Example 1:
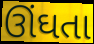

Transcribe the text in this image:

ઊંઘતા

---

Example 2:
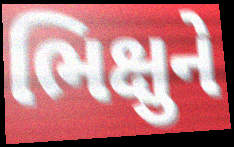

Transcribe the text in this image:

ભિક્ષુને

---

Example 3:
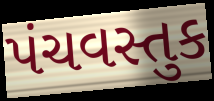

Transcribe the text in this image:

પંચવસ્તુક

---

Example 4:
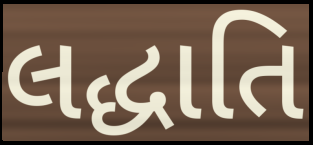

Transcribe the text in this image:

લદ્ધાતિ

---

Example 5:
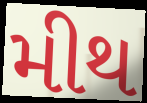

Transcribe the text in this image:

મીથ